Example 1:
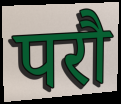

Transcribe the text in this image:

परौ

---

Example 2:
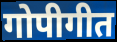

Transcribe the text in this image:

गोपीगीत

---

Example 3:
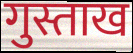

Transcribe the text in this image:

गुस्ताख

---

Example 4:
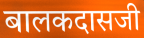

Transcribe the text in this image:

बालकदासजी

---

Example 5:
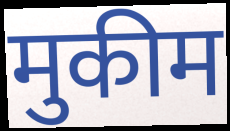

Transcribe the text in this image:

मुकीम